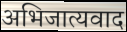
अभिजात्यवाद